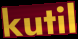
kutil